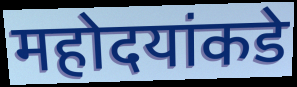
महोदयांकडे